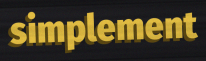
simplement